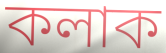
কলাক